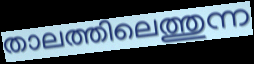
താലത്തിലെത്തുന്ന